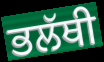
ਭਲੱਥੀ